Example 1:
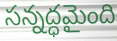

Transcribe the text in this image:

సన్నద్ధమైంది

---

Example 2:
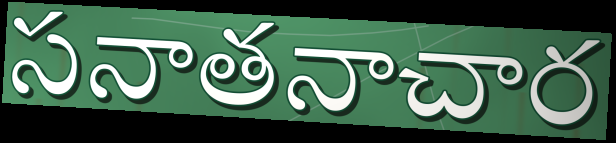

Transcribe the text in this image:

సనాతనాచార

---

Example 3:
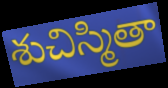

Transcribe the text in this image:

శుచిస్మితా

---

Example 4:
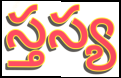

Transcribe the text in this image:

స్తస్య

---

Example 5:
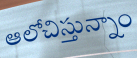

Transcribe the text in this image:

ఆలోచిస్తున్నాం